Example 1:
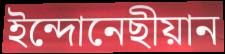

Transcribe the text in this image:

ইন্দোনেছীয়ান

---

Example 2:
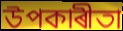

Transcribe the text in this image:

উপকাৰীতা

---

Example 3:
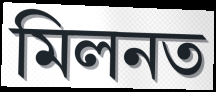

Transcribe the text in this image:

মিলনত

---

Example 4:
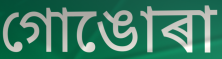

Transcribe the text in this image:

গোঙোৰা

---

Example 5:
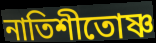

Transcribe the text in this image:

নাতিশীতোষ্ণ